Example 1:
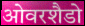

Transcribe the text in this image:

ओवरशैडो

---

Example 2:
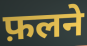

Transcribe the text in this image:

फ़लने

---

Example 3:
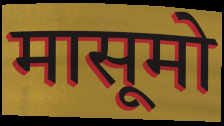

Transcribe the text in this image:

मासूमो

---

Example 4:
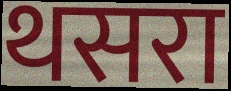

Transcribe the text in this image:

थसरा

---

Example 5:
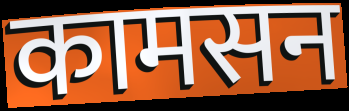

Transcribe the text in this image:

कामसन